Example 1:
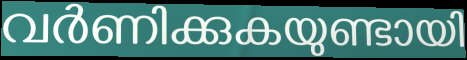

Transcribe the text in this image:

വർണിക്കുകയുണ്ടായി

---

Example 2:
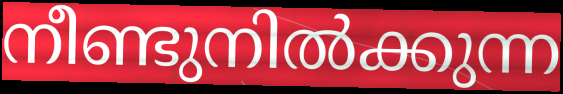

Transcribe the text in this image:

നീണ്ടുനിൽക്കുന്ന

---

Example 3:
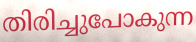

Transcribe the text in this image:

തിരിച്ചുപോകുന്ന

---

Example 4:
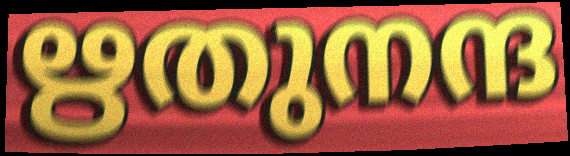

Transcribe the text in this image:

ഋതുനന്ദ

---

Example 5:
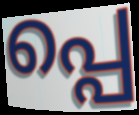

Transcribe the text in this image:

പ്പെ